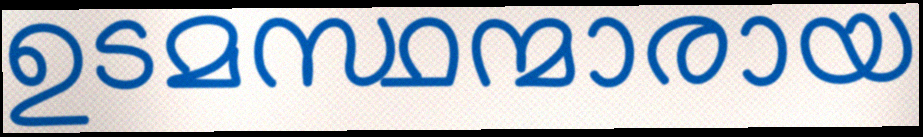
ഉടമസ്ഥന്മാരായ